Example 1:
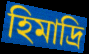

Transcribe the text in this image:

হিমাদ্রি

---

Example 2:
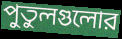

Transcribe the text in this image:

পুতুলগুলোর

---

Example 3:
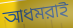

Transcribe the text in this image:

আধমরাই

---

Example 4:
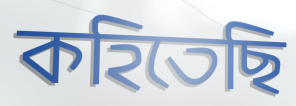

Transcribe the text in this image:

কহিতেছি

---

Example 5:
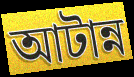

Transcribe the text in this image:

আটান্ন